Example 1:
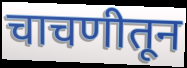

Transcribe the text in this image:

चाचणीतून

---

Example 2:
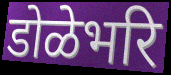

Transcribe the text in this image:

डोळेभरि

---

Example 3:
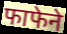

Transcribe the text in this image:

फाफेने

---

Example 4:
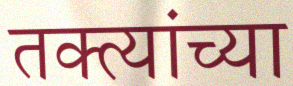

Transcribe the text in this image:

तक्त्यांच्या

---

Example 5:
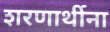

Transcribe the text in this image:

शरणार्थीना